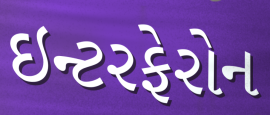
ઇન્ટરફેરોન